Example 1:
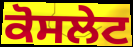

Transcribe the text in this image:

ਕੋਸਲੇਟ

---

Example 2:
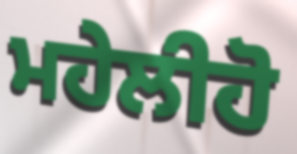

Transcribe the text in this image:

ਮਹੇਲੀਹੋ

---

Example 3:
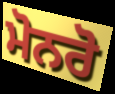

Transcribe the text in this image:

ਮੋਨਰੋ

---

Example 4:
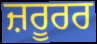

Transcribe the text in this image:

ਜ਼ਰੂਰਰ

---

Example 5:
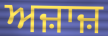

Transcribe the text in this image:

ਅਜ਼ਾਜ਼